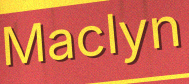
Maclyn